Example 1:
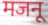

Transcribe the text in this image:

मजनू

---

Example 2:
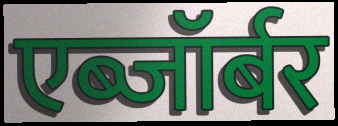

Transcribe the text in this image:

एब्जॉर्बर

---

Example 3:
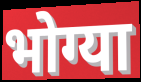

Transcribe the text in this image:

भोग्या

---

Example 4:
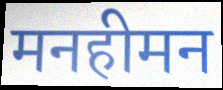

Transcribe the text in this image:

मनहीमन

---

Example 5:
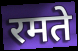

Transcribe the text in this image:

रमते